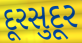
દૂરસુદૂર